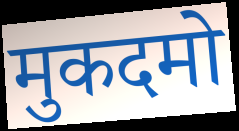
मुकदमो